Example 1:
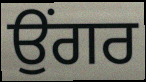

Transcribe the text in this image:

ਉਂਗਰ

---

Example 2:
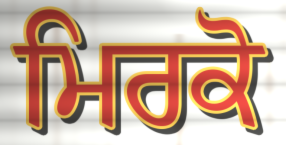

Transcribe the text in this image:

ਮਿਰਕੋ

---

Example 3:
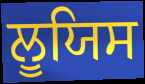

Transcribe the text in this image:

ਲੂਯਿਸ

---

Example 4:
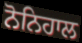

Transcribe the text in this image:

ਨੋਨਿਹਾਲ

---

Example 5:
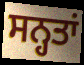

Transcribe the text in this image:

ਸਨ੍ਹਤਾਂ